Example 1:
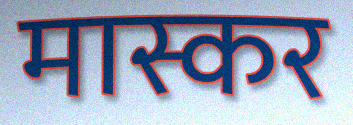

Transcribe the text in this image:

मास्कर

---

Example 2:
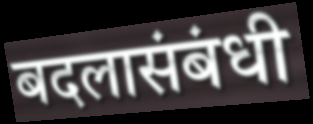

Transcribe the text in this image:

बदलासंबंधी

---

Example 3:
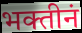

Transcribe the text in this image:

भक्तीनं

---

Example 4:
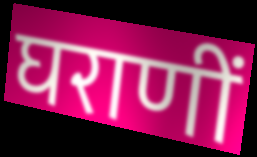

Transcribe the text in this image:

घराणीं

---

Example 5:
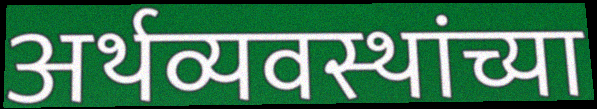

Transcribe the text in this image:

अर्थव्यवस्थांच्या